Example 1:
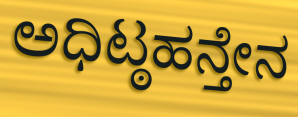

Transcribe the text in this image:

ಅಧಿಟ್ಠಹನ್ತೇನ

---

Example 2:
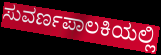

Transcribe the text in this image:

ಸುವರ್ಣಪಾಲಕಿಯಲ್ಲಿ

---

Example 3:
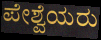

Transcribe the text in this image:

ಪೇಶ್ವೆಯರು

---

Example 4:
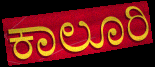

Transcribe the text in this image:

ಕಾಲೂರಿ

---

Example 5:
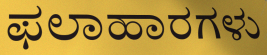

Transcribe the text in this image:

ಫಲಾಹಾರಗಳು